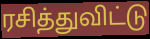
ரசித்துவிட்டு